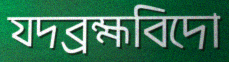
যদব্রহ্মবিদো